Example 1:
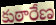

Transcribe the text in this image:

కుఠారేణ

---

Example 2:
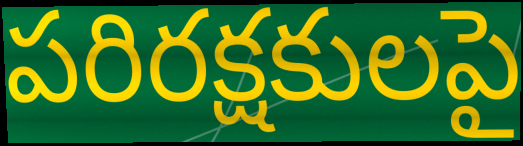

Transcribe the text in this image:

పరిరక్షకులపై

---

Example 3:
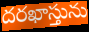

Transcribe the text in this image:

దరఖాస్తును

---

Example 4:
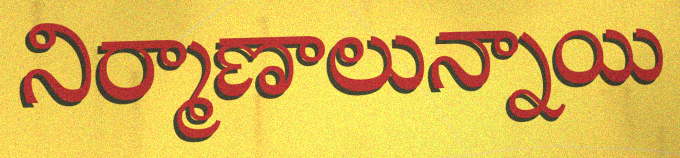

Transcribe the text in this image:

నిర్మాణాలున్నాయి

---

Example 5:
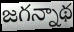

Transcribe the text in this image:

జగన్నాథ